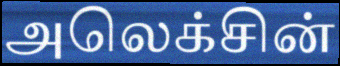
அலெக்சின்